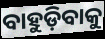
ବାହୁଡ଼ିବାକୁ